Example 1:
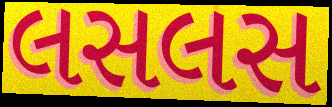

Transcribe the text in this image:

લસલસ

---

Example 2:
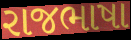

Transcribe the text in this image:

રાજભાષા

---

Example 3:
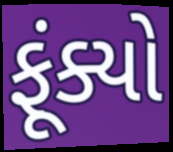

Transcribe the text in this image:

ફૂંક્યો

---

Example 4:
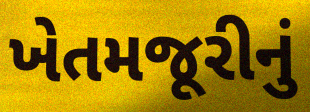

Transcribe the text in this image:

ખેતમજૂરીનું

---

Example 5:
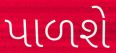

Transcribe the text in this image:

પાળશે